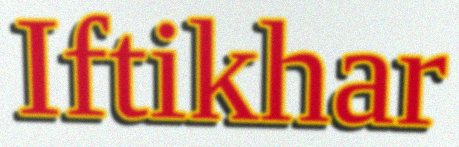
Iftikhar